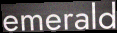
emerald